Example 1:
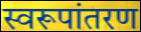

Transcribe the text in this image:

स्वरूपांतरण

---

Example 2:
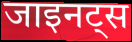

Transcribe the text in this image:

जाइनट्स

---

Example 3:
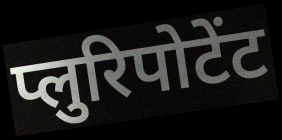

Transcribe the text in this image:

प्लुरिपोटेंट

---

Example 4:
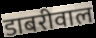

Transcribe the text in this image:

डाबरीवाल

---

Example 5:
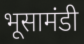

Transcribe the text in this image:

भूसामंडी